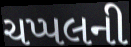
ચપ્પલની